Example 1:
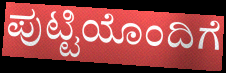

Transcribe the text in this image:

ಪುಟ್ಟಿಯೊಂದಿಗೆ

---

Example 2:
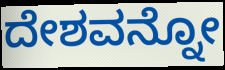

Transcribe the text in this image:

ದೇಶವನ್ನೋ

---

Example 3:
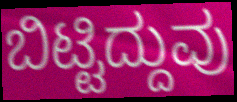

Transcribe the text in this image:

ಬಿಟ್ಟಿದ್ದುವು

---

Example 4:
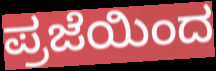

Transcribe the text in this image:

ಪ್ರಜೆಯಿಂದ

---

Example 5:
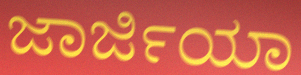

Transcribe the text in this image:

ಜಾರ್ಜಿಯಾ